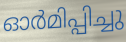
ഓർമിപ്പിച്ചു